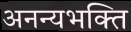
अनन्यभक्ति